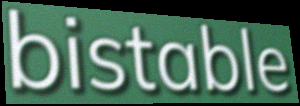
bistable